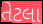
તેટલા